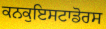
ਕਨਕੁਇਸਟਾਡੋਰਸ